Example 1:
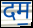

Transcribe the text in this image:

दम॒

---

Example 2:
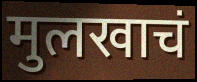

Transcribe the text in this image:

मुलखाचं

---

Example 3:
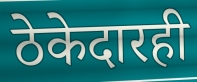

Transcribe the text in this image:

ठेकेदारही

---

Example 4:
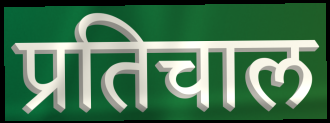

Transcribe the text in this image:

प्रतिचाल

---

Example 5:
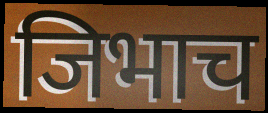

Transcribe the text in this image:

जिभाच